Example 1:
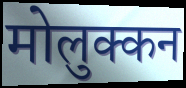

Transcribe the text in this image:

मोलुक्कन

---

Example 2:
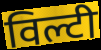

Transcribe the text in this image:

विल्टी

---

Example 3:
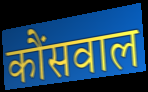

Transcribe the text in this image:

कौंसवाल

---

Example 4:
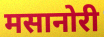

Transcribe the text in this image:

मसानोरी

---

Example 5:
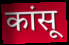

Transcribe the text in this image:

कांसू